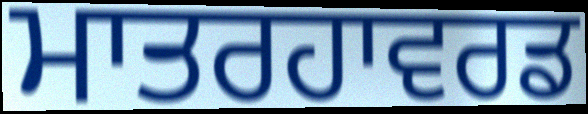
ਮਾਤਰਹਾਵਰਡ